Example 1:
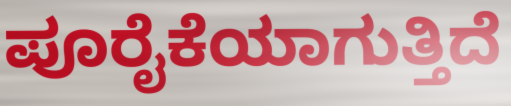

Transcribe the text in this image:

ಪೂರೈಕೆಯಾಗುತ್ತಿದೆ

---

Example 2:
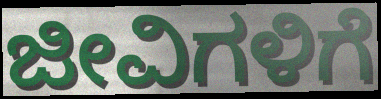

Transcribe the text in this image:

ಜೀವಿಗಳಿಗೆ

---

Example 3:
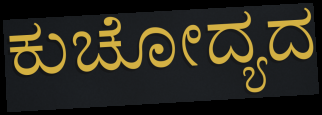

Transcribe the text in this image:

ಕುಚೋದ್ಯದ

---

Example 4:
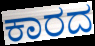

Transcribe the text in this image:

ಕಾರದ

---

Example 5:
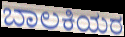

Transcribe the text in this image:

ಬಾಲಕಿಯರ